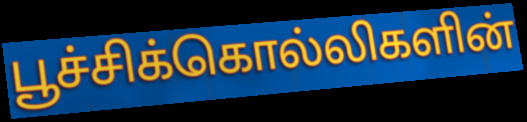
பூச்சிக்கொல்லிகளின்